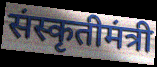
संस्कृतीमंत्री